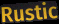
Rustic